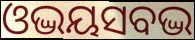
ଓଦ୍ଭୟସବଦ୍ଭ